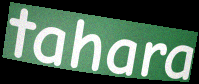
tahara